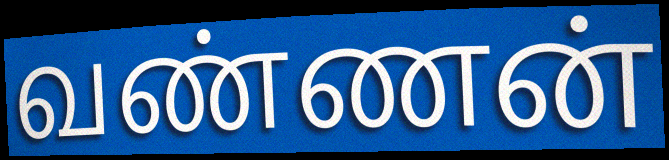
வண்ணன்